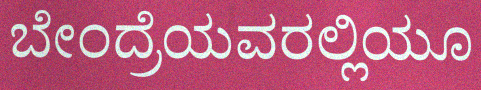
ಬೇಂದ್ರೆಯವರಲ್ಲಿಯೂ